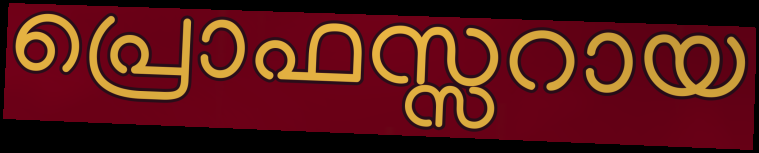
പ്രൊഫസ്സറായ